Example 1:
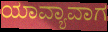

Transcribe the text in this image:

ಯಾವ್ಯಾವಾಗ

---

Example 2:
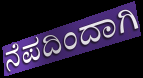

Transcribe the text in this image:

ನೆಪದಿಂದಾಗಿ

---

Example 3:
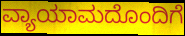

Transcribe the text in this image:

ವ್ಯಾಯಾಮದೊಂದಿಗೆ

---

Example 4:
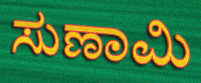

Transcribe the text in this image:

ಸುಣಾಮಿ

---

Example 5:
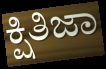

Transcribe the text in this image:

ಕ್ಷಿತಿಜಾ